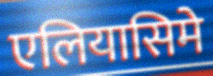
एलियासिमे